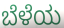
ಬೆಳೆಯ